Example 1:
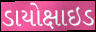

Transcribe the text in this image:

ડાયોક્ષાઇડ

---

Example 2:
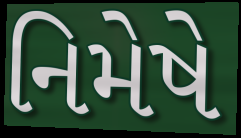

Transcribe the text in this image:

નિમેષે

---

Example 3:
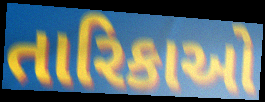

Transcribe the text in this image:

તારિકાઓ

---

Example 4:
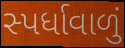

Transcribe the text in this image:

સ્પર્ધાવાળું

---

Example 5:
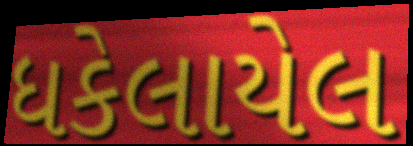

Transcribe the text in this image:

ધકેલાયેલ